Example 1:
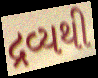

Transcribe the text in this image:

દ્રવ્યથી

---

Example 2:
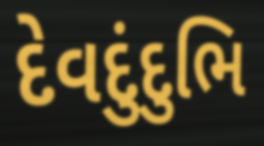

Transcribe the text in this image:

દેવદુંદુભિ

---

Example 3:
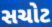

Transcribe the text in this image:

સચોટ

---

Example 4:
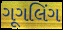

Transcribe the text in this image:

ગૂગલિંગ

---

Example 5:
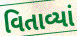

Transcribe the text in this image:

વિતાવ્યાં